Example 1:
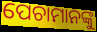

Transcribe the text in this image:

ପେଚାମାନଙ୍କୁ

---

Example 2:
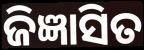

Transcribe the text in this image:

ଜିଜ୍ଞାସିତ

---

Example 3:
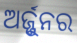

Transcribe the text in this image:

ଅର୍ଜ୍ଜୁନର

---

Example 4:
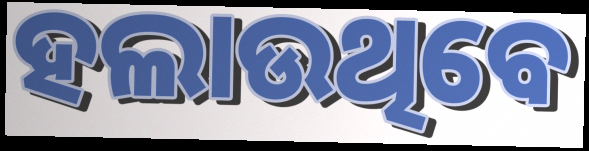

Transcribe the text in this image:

ହଲାଉଥିବେ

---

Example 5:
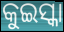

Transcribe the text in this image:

କୁଇସ୍କା